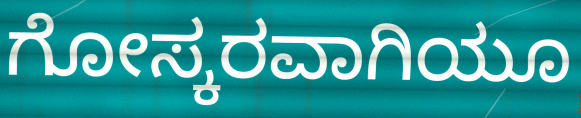
ಗೋಸ್ಕರವಾಗಿಯೂ